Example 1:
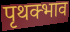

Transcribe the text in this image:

पृथक्भाव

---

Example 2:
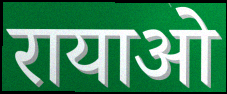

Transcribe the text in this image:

रायाओ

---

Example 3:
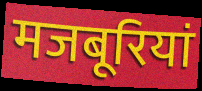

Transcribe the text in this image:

मजबूरियां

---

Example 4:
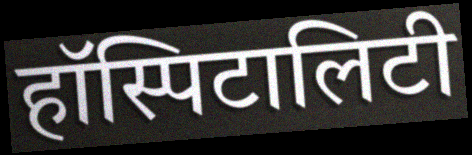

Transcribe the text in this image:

हॉस्पिटालिटी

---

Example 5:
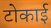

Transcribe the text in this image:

टोकाई